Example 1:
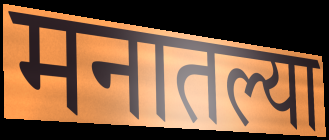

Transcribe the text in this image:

मनातल्या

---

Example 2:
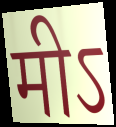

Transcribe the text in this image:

मीऽ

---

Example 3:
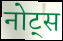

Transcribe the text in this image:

नोट्‌स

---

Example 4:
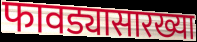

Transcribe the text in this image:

फावड्यासारख्या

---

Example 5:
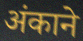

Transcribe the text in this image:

अंकाने